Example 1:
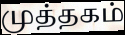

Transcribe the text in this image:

முத்தகம்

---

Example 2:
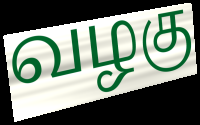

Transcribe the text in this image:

வழகு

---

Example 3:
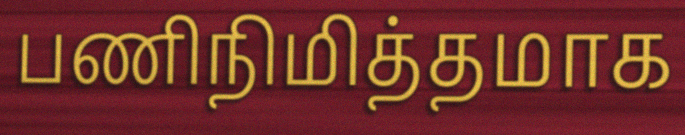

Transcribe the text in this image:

பணிநிமித்தமாக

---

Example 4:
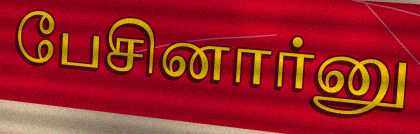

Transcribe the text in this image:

பேசினார்னு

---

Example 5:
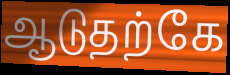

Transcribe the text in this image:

ஆடுதற்கே